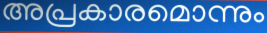
അപ്രകാരമൊന്നും